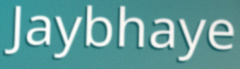
Jaybhaye